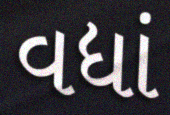
વદ્યાં